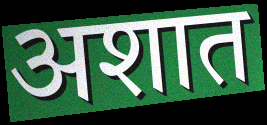
अशात